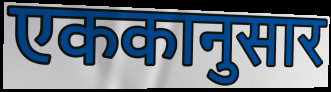
एककानुसार